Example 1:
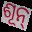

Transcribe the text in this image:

ଶୂନ୍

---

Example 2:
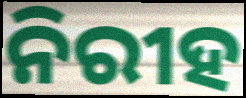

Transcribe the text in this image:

ନିରୀହ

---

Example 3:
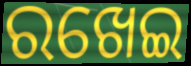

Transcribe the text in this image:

ରଖେଇ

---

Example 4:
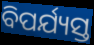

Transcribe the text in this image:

ବିପର୍ଯ୍ୟସ୍ତ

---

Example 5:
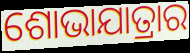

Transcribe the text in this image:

ଶୋଭାଯାତ୍ରାର